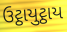
ઉટ્ઠાયુટ્ઠાય